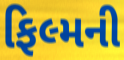
ફિલ્મની